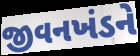
જીવનખંડને